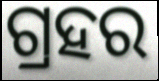
ଗ୍ରହର